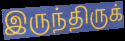
இருந்திருக்